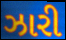
ઝારી